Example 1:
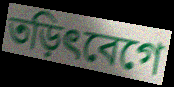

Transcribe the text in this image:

তড়িৎবেগে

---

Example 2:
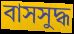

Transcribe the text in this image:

বাসসুদ্ধ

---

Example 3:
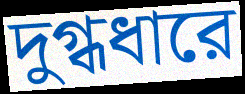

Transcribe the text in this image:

দুগ্ধধারে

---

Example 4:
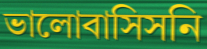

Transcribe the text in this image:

ভালোবাসিসনি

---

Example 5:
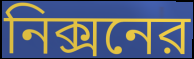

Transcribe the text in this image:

নিক্সনের